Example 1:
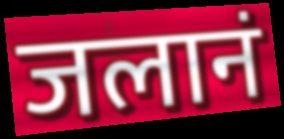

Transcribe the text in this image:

जलानं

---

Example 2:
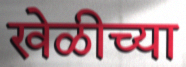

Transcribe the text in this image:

खेळीच्या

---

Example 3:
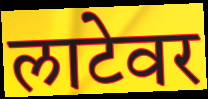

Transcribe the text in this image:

लाटेवर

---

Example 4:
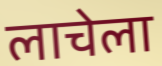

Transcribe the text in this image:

लाचेला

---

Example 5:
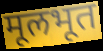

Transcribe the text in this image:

मूलभूत